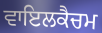
ਵਾਇਲਕੈਚਮ